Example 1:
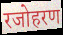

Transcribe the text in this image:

रजोहरण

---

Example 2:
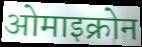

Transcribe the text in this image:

ओमाइक्रोन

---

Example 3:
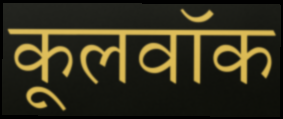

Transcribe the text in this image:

कूलवॉक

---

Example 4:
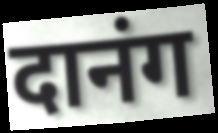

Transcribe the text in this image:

दानंग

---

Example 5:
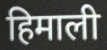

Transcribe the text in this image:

हिमाली